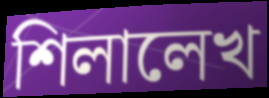
শিলালেখ